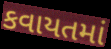
કવાયતમાં